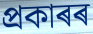
প্ৰকাৰৰ